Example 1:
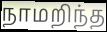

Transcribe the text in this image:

நாமறிந்த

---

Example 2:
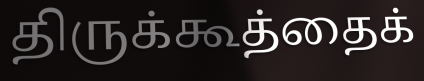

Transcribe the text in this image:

திருக்கூத்தைக்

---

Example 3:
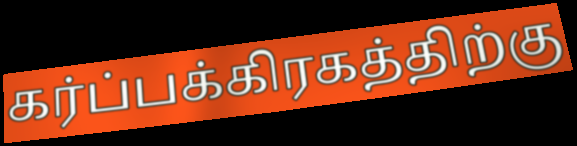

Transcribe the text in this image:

கர்ப்பக்கிரகத்திற்கு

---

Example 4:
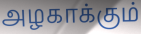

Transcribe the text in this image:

அழகாக்கும்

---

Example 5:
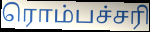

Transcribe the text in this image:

ரொம்பச்சரி